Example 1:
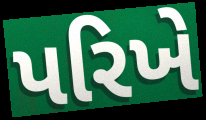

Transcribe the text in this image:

પરિખે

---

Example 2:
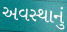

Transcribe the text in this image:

અવસ્થાનું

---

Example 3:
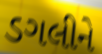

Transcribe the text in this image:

ડગલીને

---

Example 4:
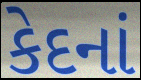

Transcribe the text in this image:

કેદનાં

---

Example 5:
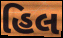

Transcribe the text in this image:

હિલ